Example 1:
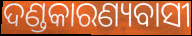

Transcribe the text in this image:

ଦଣ୍ଡକାରଣ୍ୟବାସୀ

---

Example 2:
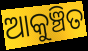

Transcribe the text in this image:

ଆକୁଞ୍ଚିତ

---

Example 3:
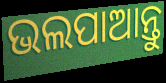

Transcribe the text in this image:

ଭଲପାଆନ୍ତୁ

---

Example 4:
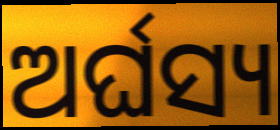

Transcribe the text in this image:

ଅର୍ଘସ୍ୟ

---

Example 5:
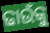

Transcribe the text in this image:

ଢାଉଁକୁ